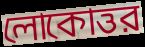
লোকোত্তর